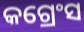
କଗ୍ରେଂସ